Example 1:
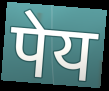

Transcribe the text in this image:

पेय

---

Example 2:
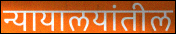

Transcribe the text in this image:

न्यायालयांतील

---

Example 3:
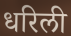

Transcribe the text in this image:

धरिली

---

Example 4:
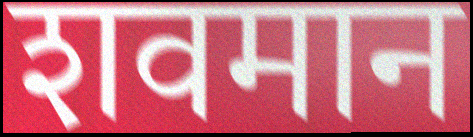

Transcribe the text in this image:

शवमान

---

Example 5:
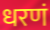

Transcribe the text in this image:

धरणं